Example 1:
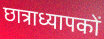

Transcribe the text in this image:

छात्राध्यापकों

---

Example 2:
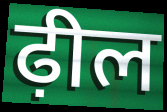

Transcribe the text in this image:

ढ़ील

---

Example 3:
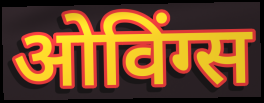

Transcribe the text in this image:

ओविंग्स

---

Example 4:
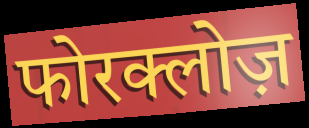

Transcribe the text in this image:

फोरक्लोज़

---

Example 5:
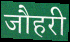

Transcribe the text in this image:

जौहरी